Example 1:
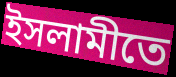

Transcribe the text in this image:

ইসলামীতে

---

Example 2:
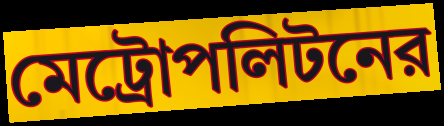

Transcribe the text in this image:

মেট্রোপলিটনের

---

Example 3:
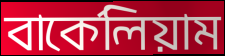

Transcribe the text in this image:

বার্কেলিয়াম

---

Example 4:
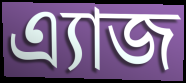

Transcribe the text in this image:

এ্যাজ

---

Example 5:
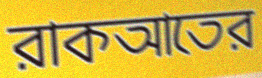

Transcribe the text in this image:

রাকআতের